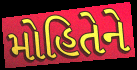
મોહિતેને